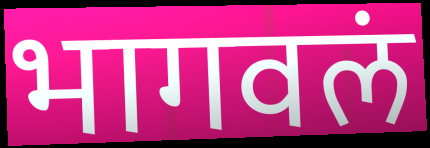
भागवलं